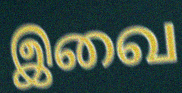
இவை